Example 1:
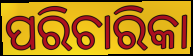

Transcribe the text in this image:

ପରିଚାରିକା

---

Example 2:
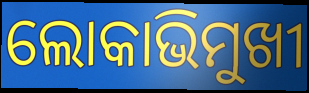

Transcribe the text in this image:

ଲୋକାଭିମୁଖୀ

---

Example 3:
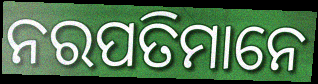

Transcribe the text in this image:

ନରପତିମାନେ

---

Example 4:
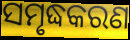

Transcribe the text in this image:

ସମୃଦ୍ଧକରଣ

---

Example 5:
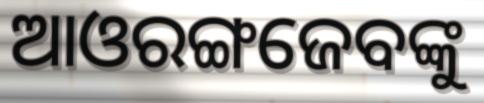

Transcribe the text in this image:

ଆଓରଙ୍ଗଜେବଙ୍କୁ